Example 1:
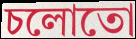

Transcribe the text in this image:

চলোতো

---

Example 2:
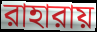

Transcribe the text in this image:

রাহারায়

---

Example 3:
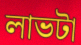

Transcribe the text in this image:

লাভটা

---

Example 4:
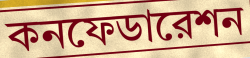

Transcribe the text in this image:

কনফেডারেশন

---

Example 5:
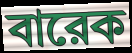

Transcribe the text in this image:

বারেক